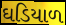
ઘડિયાળ